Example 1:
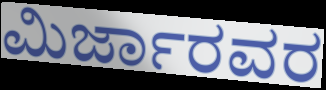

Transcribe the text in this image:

ಮಿರ್ಜಾರವರ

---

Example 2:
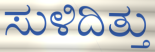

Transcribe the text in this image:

ಸುಳಿದಿತ್ತು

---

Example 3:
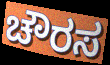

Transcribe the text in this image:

ಚೌರಸ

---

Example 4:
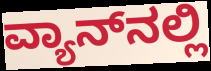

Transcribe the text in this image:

ವ್ಯಾನ್‌ನಲ್ಲಿ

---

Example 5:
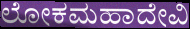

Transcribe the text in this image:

ಲೋಕಮಹಾದೇವಿ